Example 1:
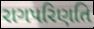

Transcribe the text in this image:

રાગપરિણતિ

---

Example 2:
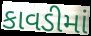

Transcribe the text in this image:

કાવડીમાં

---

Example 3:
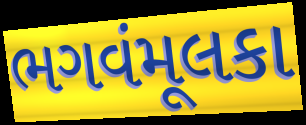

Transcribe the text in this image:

ભગવંમૂલકા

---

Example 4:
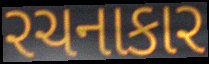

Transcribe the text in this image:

રચનાકાર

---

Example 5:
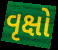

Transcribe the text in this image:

વૃક્ષો